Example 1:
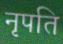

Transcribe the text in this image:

नृपति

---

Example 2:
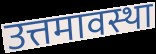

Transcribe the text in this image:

उत्तमावस्था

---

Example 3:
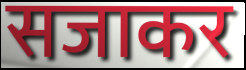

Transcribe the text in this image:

सजाकर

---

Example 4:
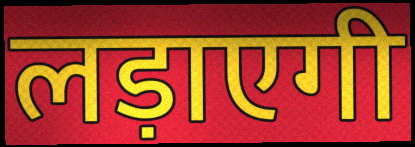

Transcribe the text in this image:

लड़ाएगी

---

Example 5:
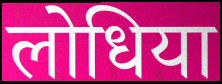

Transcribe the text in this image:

लोधिया